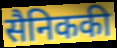
सैनिककी